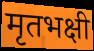
मृतभक्षी